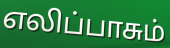
எலிப்பாசும்